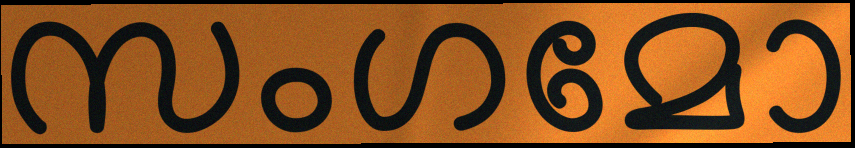
സംഗമോ